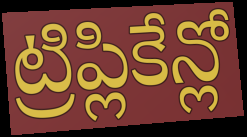
ట్రిప్లికేన్లో